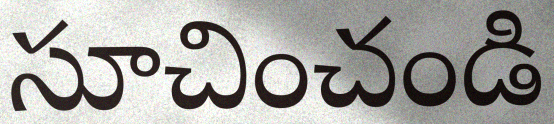
సూచించండి